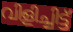
വിളിച്ചിട്ട്